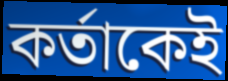
কর্তাকেই